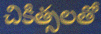
చికిత్సలతో